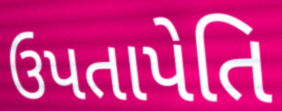
ઉપતાપેતિ